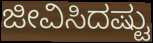
ಜೀವಿಸಿದಷ್ಟು